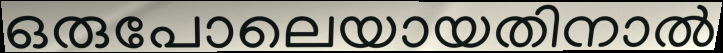
ഒരുപോലെയായതിനാൽ